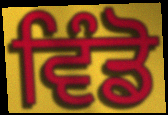
ਵਿੰਡੋ